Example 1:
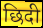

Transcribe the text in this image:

छिदी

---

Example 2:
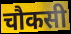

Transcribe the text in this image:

चौकसी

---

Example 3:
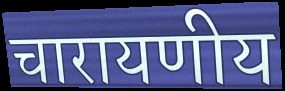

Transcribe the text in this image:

चारायणीय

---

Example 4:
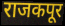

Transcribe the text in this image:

राजकपूर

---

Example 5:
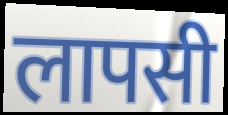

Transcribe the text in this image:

लापसी